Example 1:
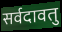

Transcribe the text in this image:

सर्वदावतु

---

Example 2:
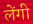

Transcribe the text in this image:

लेंगी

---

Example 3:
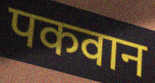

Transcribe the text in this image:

पकवान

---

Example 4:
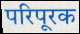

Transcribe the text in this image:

परिपूरक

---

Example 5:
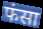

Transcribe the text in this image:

फंसा